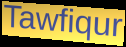
Tawfiqur